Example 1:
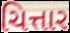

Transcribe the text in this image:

ચિત્તાર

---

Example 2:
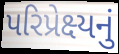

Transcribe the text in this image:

પરિપ્રેક્ષ્યનું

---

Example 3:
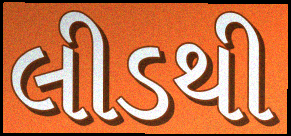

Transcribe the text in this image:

લીડથી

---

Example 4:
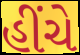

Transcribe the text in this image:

હીંચે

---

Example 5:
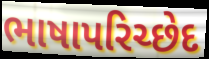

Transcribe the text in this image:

ભાષાપરિચ્છેદ